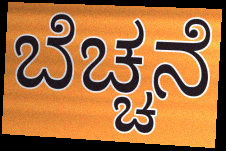
ಬೆಚ್ಚನೆ